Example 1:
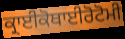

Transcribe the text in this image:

ਕ੍ਰਾਈਕੋਥਾਈਰੋਟੋਮੀ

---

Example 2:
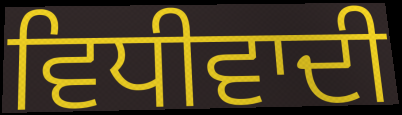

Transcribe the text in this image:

ਵਿਧੀਵਾਦੀ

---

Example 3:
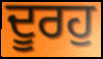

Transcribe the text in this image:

ਦੂਰਹੁ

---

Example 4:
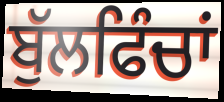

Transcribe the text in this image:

ਬੁੱਲਫਿੰਚਾਂ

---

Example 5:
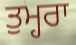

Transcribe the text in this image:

ਤੁਮ੍ਹਰਾ